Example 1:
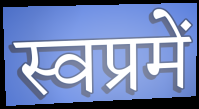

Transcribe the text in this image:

स्वप्रमें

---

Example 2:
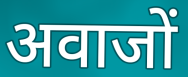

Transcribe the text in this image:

अवाजों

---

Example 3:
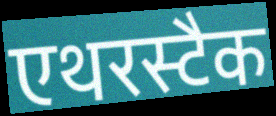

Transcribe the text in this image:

एथरस्टैक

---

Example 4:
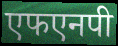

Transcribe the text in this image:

एफएनपी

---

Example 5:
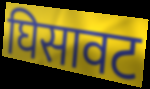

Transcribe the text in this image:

घिसावट